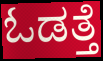
ಓಡತ್ತೆ